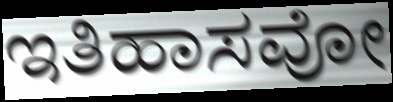
ಇತಿಹಾಸವೋ